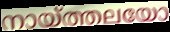
നായ്ത്തലയോ